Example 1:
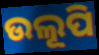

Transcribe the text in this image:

ଉଲୂପି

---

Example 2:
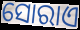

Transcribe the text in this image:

ସୋରାଏ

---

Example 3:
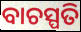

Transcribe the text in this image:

ବାଚସ୍ପତି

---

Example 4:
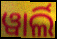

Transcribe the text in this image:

ୱାର୍ଲି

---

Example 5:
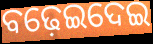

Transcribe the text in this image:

ବଢ଼େଇଦେଇ